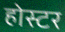
होस्टर